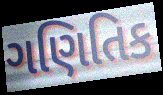
ગણિતિક